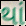
થાં